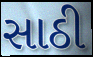
સાઠી